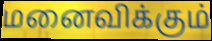
மனைவிக்கும்